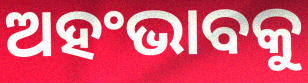
ଅହଂଭାବକୁ